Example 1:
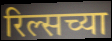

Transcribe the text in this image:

रिल्सच्या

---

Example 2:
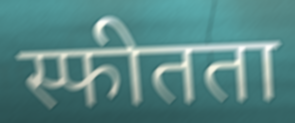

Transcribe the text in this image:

स्फीतता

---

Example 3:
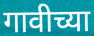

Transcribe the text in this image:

गावीच्या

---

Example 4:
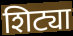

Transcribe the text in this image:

शिट्या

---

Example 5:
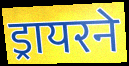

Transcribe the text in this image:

ड्रायरने